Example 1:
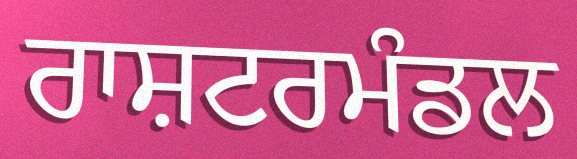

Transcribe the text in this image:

ਰਾਸ਼ਟਰਮੰਡਲ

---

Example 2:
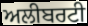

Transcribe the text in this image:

ਅਲੀਬਰਟੀ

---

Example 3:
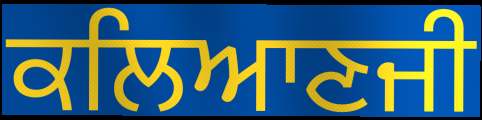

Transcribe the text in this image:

ਕਲਿਆਣਜੀ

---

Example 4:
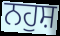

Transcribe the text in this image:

ਨਹੁਸ਼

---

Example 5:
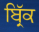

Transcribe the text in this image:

ਬ੍ਰਿੱਕ